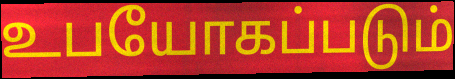
உபயோகப்படும்